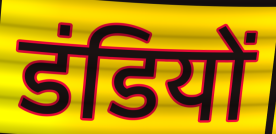
डंडियों